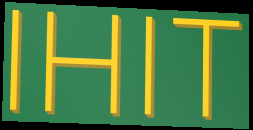
IHIT